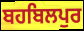
ਬਹਬਿਲਪੁਰ